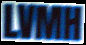
LVMH